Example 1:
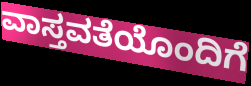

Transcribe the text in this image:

ವಾಸ್ತವತೆಯೊಂದಿಗೆ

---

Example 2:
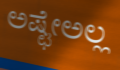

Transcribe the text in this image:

ಅಷ್ಟೇಅಲ್ಲ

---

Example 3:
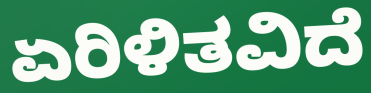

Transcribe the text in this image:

ಏರಿಳಿತವಿದೆ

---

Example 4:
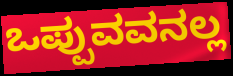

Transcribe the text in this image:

ಒಪ್ಪುವವನಲ್ಲ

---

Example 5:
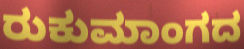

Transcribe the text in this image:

ರುಕುಮಾಂಗದ